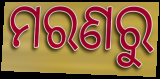
ମରଣରୁ